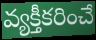
వ్యక్తీకరించే